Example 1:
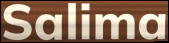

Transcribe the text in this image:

Salima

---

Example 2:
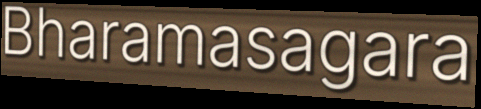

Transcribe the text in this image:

Bharamasagara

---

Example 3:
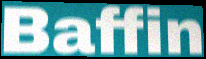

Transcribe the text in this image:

Baffin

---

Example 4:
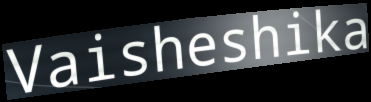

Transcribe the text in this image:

Vaisheshika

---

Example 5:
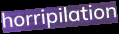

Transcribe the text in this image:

horripilation